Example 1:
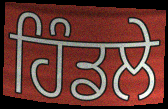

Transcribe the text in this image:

ਹਿੰਡਲੇ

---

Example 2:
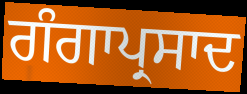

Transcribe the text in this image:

ਗੰਗਾਪ੍ਰਸਾਦ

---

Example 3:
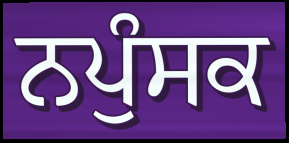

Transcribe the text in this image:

ਨਪੁੰਸਕ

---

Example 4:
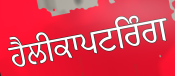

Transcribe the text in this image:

ਹੈਲੀਕਾਪਟਰਿੰਗ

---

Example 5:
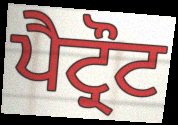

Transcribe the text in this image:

ਪੈਟ੍ਰੌਟ